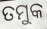
ତମୁକ